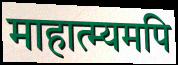
माहात्म्यमपि